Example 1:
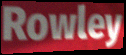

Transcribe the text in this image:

Rowley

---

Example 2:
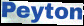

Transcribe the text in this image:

Peyton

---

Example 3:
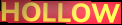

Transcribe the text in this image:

HOLLOW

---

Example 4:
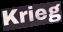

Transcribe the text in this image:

Krieg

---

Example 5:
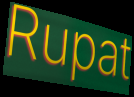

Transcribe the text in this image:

Rupat